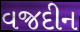
વજ્રદીન